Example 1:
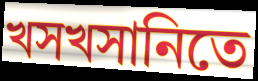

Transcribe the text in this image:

খসখসানিতে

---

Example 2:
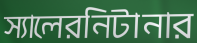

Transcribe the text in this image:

স্যালেরনিটানার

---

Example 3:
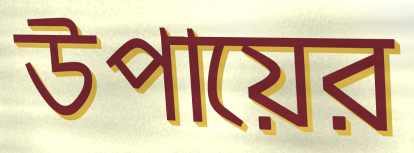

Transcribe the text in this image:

উপায়ের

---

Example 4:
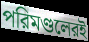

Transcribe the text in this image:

পরিমণ্ডলেরই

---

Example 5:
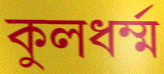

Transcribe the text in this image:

কুলধর্ম্ম